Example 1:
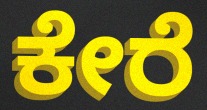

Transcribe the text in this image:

ಕೇರೆ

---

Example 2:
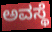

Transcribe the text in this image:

ಅವಸ್ಥೆ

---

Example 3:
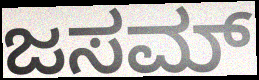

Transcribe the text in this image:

ಜಸಮ್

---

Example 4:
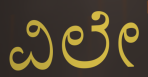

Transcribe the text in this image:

ವಿಲೇ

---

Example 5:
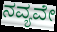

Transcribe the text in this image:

ನವ್ಯವೇ